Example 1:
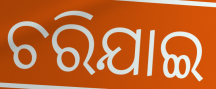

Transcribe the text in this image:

ଚରିଯାଇ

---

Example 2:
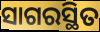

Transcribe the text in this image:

ସାଗରସ୍ଥିତ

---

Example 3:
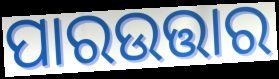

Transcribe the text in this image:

ପାରଉତ୍ତାର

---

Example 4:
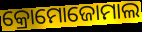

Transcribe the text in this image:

କ୍ରୋମୋଜୋମାଲ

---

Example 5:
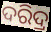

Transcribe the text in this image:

ଦରିଦ୍ର